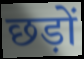
छड़ों